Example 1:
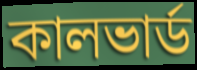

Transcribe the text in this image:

কালভার্ড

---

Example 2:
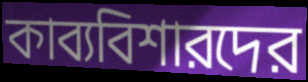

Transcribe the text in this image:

কাব্যবিশারদের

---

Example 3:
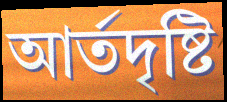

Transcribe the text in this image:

আর্তদৃষ্টি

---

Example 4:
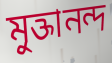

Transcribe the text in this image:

মুক্তানন্দ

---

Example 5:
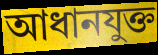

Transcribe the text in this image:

আধানযুক্ত